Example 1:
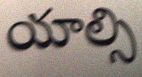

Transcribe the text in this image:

యాల్సి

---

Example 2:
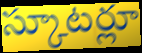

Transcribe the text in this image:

స్కూటర్లూ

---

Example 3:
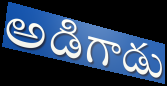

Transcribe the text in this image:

అడిగాడు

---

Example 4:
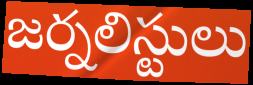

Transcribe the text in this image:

జర్నలిస్టులు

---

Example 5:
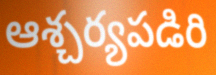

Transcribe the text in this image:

ఆశ్చర్యపడిరి